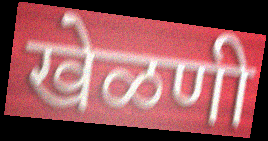
खेळणी